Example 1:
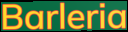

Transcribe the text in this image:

Barleria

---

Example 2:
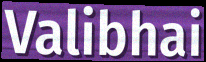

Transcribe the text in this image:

Valibhai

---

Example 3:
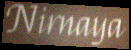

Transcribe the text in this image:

Nirnaya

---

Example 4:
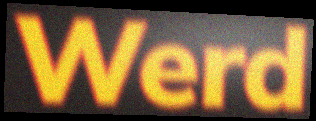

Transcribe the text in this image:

Werd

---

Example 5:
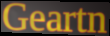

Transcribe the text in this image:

Geartn